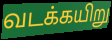
வடக்கயிறு